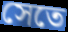
সেতে